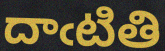
దాఁటితి